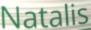
Natalis